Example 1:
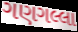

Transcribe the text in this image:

ગણગલ્લા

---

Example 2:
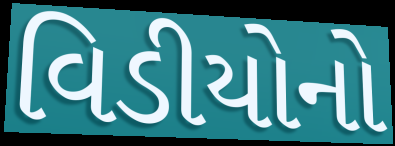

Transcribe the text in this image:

વિડીયોનો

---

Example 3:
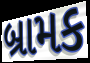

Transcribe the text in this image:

બ્રામક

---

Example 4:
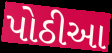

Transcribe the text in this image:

પોઠીઆ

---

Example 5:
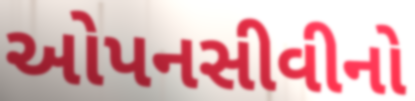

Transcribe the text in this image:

ઓપનસીવીનો